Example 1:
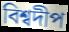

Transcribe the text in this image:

বিশ্বদীপ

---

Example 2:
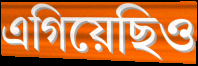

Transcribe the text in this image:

এগিয়েছিও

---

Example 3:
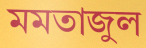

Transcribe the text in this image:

মমতাজুল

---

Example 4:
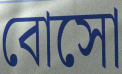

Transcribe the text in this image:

বোসো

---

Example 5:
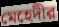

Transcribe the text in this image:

মেহেদীর